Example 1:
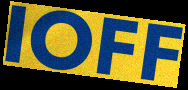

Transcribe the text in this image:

IOFF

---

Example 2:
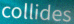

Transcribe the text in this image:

collides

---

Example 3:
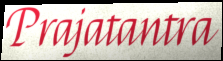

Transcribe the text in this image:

Prajatantra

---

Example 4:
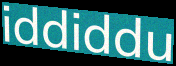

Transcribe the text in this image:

iddiddu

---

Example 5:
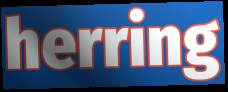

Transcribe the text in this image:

herring